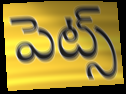
పెట్స్